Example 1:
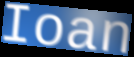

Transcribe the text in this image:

Ioan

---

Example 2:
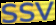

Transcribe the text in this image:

SSV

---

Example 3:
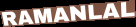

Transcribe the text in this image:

RAMANLAL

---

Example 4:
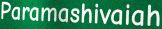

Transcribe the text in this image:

Paramashivaiah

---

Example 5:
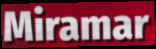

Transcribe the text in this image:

Miramar